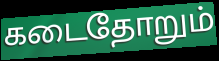
கடைதோறும்